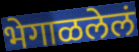
भेगाळलेलं